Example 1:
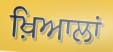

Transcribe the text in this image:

ਖ਼ਿਆਲਾਂ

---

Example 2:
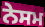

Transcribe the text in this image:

ਨੇਸਮ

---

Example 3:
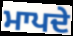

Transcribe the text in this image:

ਮਾਪਦੇ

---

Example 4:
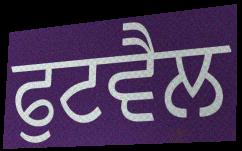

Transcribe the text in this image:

ਫੁਟਵੈਲ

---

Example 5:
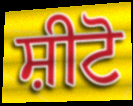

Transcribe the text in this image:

ਸ਼ੀਟੋ